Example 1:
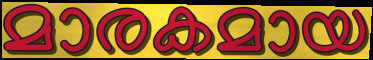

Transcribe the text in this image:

മാരകമായ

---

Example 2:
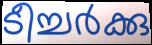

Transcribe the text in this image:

ടീച്ചർക്കു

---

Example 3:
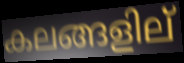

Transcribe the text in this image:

കലങ്ങളില്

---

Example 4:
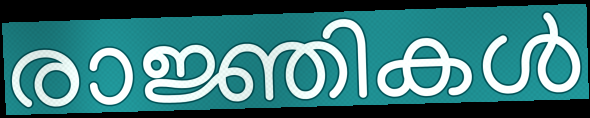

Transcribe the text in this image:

രാജ്ഞികൾ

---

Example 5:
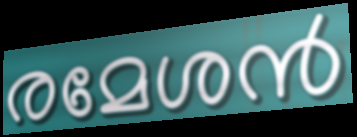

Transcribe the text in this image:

രമേശൻ